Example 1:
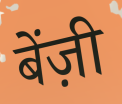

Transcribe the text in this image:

बेंज़ी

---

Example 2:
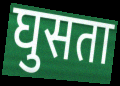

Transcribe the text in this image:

घुसता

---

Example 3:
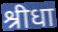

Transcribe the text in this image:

श्रीधा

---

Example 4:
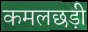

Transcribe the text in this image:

कमलछड़ी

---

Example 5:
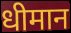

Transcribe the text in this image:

धीमान